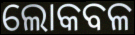
ଲୋକବଳ